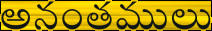
అనంతములు